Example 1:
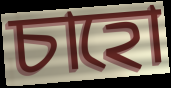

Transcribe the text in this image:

চাহো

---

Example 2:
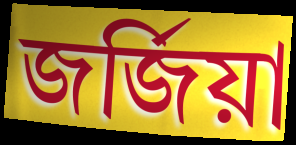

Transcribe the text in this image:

জৰ্জিয়া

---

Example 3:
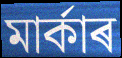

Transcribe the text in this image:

মাৰ্কাৰ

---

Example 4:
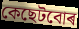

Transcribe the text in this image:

কেছেটবোৰ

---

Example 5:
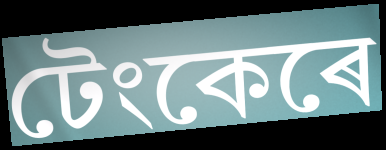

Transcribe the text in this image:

টেংকেৰে